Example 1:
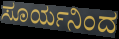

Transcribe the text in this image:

ಸೂರ್ಯನಿಂದ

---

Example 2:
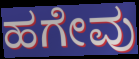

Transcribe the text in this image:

ಹಗೇವು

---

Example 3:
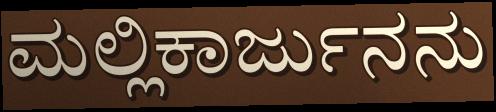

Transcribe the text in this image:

ಮಲ್ಲಿಕಾರ್ಜುನನು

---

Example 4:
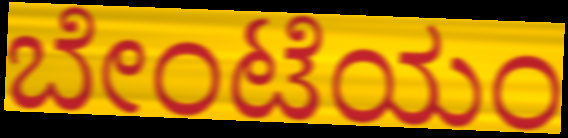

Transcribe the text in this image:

ಬೇಂಟೆಯಂ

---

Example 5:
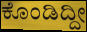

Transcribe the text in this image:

ಕೊಂಡಿದ್ದೀ